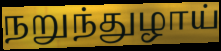
நறுந்துழாய்